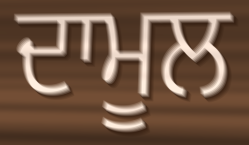
ਦਾਮੂਲ